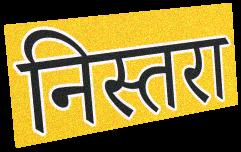
निस्तरा